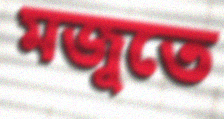
মজুতে